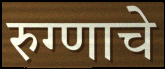
रुग्णाचे